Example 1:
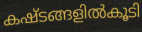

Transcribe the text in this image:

കഷ്ടങ്ങളിൽകൂടി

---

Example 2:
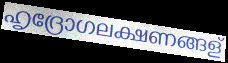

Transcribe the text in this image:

ഹൃദ്രോഗലക്ഷണങ്ങള്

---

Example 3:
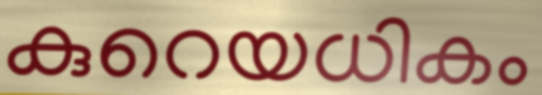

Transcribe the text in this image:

കുറെയധികം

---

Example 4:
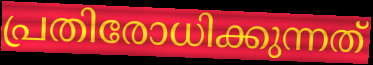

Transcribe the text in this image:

പ്രതിരോധിക്കുന്നത്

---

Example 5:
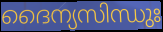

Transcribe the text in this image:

ദൈന്യസിന്ധുഃ